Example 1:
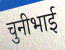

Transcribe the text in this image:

चुनीभाई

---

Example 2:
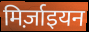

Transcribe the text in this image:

मिर्ज़ाइयन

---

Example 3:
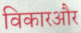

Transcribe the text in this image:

विकारऔर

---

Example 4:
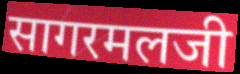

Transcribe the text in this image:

सागरमलजी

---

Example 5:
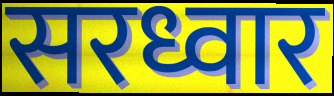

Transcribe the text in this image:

सरध्वार